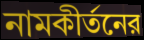
নামকীর্তনের